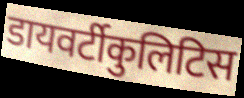
डायवर्टीकुलिटिस